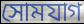
সোমযাগ